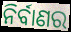
ନିର୍ବାଣର